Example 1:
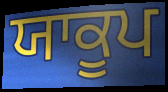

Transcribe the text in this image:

ਯਾਕੂਪ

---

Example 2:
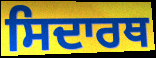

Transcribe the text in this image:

ਸਿਦਾਰਥ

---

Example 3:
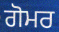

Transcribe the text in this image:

ਗੋਮਰ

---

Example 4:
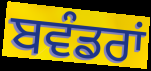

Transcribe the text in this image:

ਬਵੰਡਰਾਂ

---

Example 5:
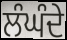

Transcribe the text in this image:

ਲੰਘੰਦੇ